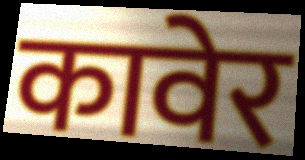
कावेर